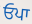
ਓਪਾ